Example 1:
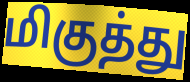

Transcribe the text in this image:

மிகுத்து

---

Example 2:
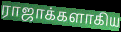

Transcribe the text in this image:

ராஜாக்களாகிய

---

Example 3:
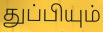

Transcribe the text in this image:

துப்பியும்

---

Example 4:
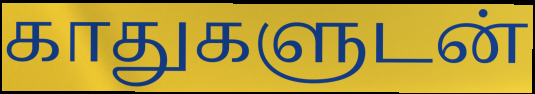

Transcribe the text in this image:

காதுகளுடன்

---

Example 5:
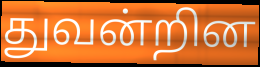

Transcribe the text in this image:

துவன்றின